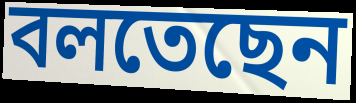
বলতেছেন